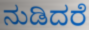
ನುಡಿದರೆ